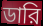
ডারি